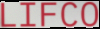
LIFCO